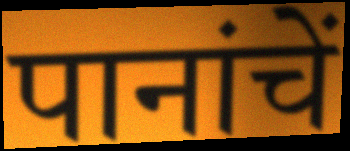
पानांचें